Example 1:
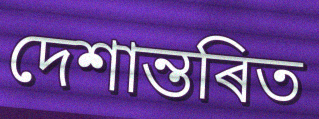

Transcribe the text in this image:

দেশান্তৰিত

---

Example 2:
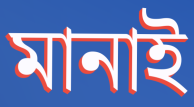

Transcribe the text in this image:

মানাই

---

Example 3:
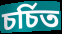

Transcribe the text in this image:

চৰ্চিত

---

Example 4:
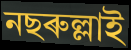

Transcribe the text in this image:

নছৰুল্লাই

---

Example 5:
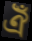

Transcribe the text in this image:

ঐঁ